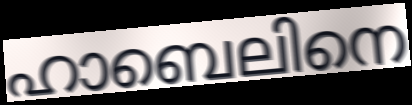
ഹാബെലിനെ